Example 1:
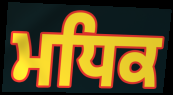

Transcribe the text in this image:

ਮਧਿਕ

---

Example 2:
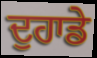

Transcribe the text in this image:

ਦੁਹਾਡੇ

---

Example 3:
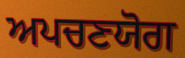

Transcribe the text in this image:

ਅਪਚਣਯੋਗ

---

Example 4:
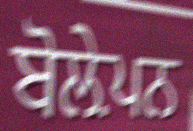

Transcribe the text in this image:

ਬੋਲ਼ੇਪਨ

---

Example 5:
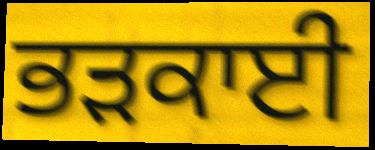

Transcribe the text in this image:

ਭੜਕਾਈ